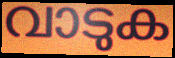
വാടുക